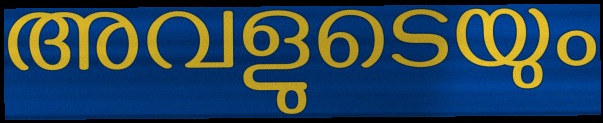
അവളുടെയും